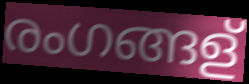
രംഗങ്ങള്